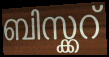
ബിസ്ക്കറ്